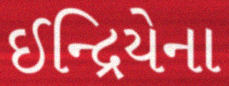
ઈન્દ્રિયેના